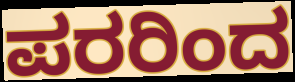
ಪರರಿಂದ